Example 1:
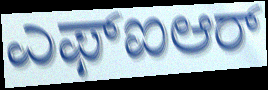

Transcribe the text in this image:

ಎಫ್ಐಆರ್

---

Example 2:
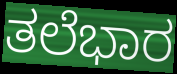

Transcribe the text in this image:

ತಲೆಭಾರ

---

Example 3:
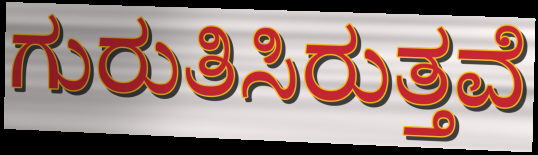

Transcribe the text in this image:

ಗುರುತಿಸಿರುತ್ತವೆ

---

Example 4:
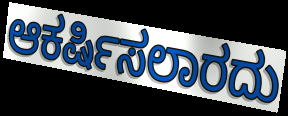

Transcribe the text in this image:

ಆಕರ್ಷಿಸಲಾರದು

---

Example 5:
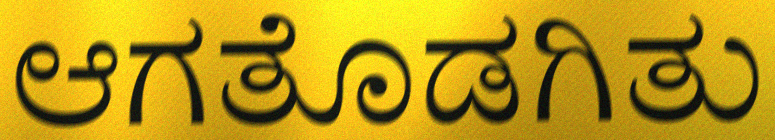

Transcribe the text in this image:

ಆಗತೊಡಗಿತು